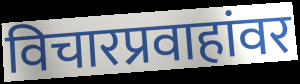
विचारप्रवाहांवर